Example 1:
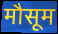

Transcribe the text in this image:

मौसूम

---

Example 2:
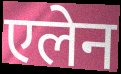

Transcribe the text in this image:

एलेन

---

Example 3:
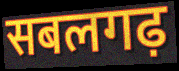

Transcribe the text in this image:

सबलगढ़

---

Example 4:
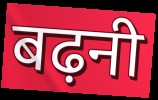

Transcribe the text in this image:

बढ़नी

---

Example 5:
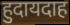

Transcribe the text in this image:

हुदायदाह